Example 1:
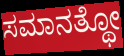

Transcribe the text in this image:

ಸಮಾನತ್ಥೋ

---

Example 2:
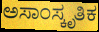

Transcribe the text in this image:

ಅಸಾಂಸ್ಕೃತಿಕ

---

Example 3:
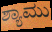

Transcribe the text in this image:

ಶ್ಯಾಮು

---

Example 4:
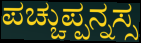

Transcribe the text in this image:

ಪಚ್ಚುಪ್ಪನ್ನಸ್ಸ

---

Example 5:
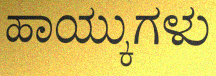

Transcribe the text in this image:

ಹಾಯ್ಕುಗಳು